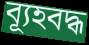
ব্যূহবদ্ধ